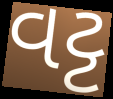
વટ્ટ